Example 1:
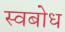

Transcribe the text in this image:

स्वबोध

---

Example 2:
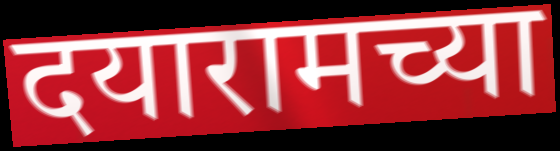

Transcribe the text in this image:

दयारामच्या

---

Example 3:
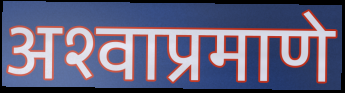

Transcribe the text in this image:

अश्वाप्रमाणे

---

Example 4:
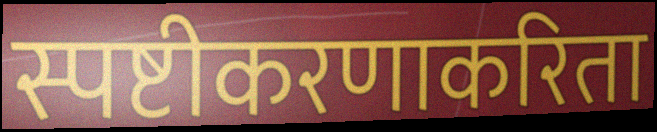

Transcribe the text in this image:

स्पष्टीकरणाकरिता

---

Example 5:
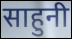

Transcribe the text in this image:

साहुनी